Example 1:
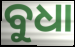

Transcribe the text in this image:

ବୁଧା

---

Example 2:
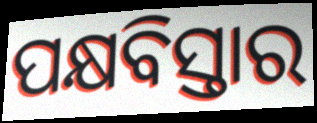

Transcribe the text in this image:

ପକ୍ଷବିସ୍ତାର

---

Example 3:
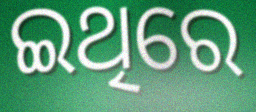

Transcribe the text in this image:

ଇଥିରେ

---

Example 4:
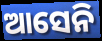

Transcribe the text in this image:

ଆସେନି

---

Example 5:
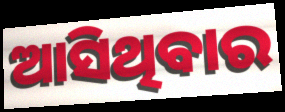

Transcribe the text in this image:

ଆସିଥିବାର